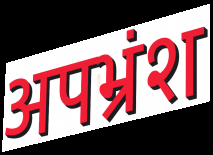
अपभ्रंश